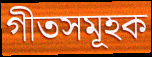
গীতসমূহক